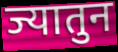
ज्यातुन